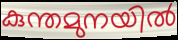
കുന്തമുനയിൽ